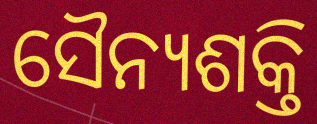
ସୈନ୍ୟଶକ୍ତି